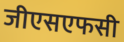
जीएसएफसी